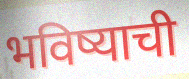
भविष्याची